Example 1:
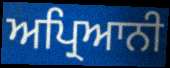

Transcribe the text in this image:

ਅਪ੍ਰਿਆਨੀ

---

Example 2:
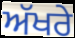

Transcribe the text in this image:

ਅੱਖਰੇ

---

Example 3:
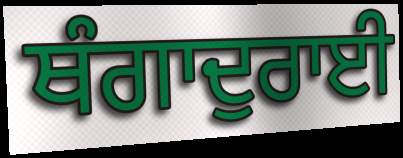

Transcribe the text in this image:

ਥੰਗਾਦੁਰਾਈ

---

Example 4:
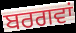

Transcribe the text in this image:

ਬਰਗਵਾਂ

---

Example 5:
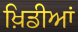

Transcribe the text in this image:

ਖ਼ਿਡੀਆਂ